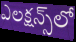
ఎలక్షన్స్‌లో